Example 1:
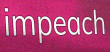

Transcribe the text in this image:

impeach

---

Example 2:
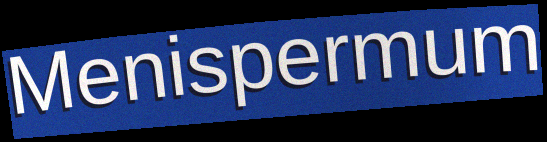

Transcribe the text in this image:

Menispermum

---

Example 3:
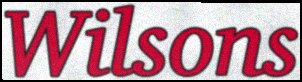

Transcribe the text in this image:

Wilsons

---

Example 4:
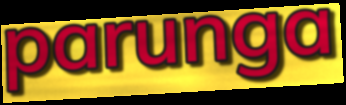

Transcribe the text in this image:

parunga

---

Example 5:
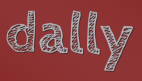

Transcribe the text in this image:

dally